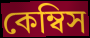
কেম্বিস